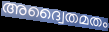
അദ്വൈതമതം